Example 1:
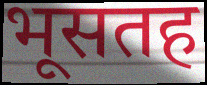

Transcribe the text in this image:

भूसतह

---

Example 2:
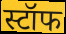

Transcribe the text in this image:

स्टॉफ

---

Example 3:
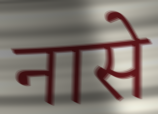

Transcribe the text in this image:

नासे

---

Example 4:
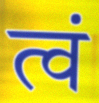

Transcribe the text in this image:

त्वं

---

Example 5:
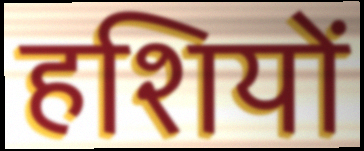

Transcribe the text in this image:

हशियों